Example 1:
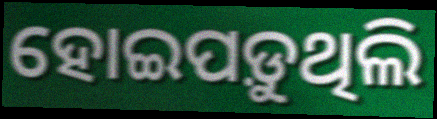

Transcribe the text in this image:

ହୋଇପଡ଼ୁଥିଲି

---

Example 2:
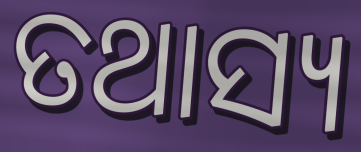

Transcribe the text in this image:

ତଥାସ୍ୟ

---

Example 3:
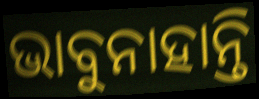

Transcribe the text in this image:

ଭାବୁନାହାନ୍ତି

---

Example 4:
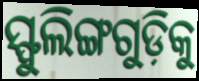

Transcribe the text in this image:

ସ୍ଫୁଲିଙ୍ଗଗୁଡ଼ିକୁ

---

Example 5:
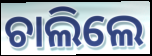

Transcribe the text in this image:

ଚାଲିଲେ